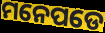
ମନେପଡେ